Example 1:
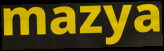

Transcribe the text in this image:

mazya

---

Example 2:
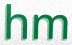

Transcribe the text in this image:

hm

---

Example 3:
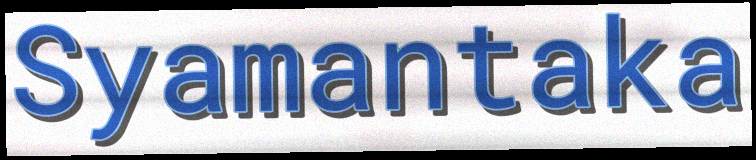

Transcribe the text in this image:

Syamantaka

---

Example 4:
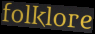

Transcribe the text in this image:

folklore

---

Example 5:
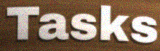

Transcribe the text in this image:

Tasks